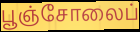
பூஞ்சோலைப்